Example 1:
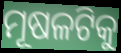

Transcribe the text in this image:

ମୂଷଳଟିକୁ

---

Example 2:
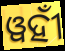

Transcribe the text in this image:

ୱହୀଁ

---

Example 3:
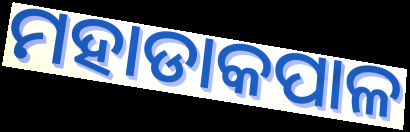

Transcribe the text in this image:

ମହାଡାକପାଳ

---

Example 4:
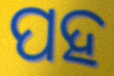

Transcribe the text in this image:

ପହ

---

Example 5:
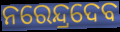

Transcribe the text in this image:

ନରେନ୍ଦ୍ରଦେବ